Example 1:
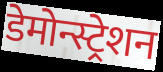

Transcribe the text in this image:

डेमोन्स्ट्रेशन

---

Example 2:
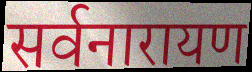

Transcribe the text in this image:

सर्वनारायण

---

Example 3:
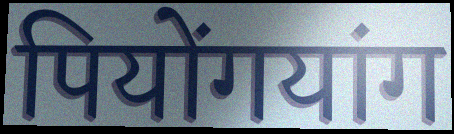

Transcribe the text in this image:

पियोंगयांग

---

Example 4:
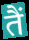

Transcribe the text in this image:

तैं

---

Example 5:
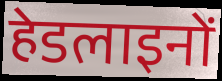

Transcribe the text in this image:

हेडलाइनों